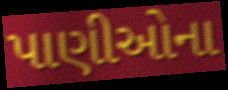
પાણીઓના